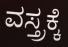
ವಸ್ತ್ರಕ್ಕೆ